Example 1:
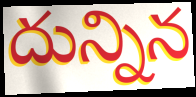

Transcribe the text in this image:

దున్నిన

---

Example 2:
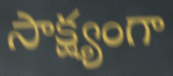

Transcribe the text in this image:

సాక్ష్యంగా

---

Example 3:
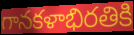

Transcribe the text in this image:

గానకళాభిరతికి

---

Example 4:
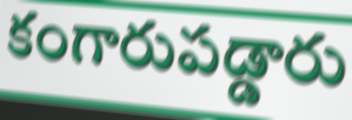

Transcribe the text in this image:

కంగారుపడ్డారు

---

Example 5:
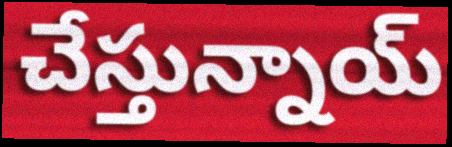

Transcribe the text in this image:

చేస్తున్నాయ్